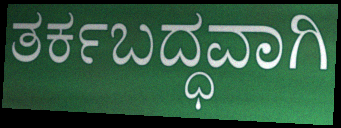
ತರ್ಕಬದ್ಧವಾಗಿ